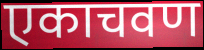
एकाचवण